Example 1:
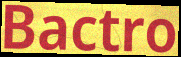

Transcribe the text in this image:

Bactro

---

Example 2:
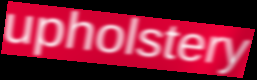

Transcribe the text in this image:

upholstery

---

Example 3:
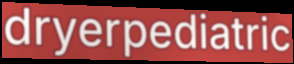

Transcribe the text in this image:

dryerpediatric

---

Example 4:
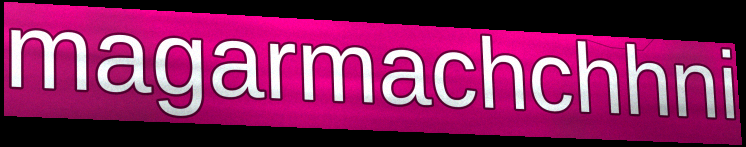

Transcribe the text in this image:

magarmachchhni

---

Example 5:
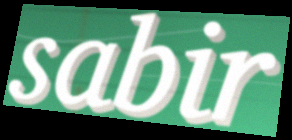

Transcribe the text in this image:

sabir